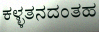
ಕಳ್ಳತನದಂತಹ